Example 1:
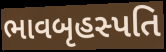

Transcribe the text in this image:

ભાવબૃહસ્પતિ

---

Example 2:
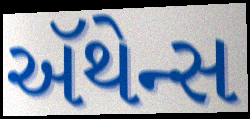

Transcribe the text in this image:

ઍથેન્સ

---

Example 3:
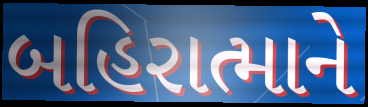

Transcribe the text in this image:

બહિરાત્માને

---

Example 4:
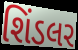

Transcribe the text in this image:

શિંડલર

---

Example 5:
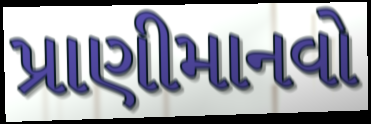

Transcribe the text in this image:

પ્રાણીમાનવો